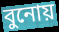
বুনোয়